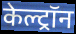
केल्ट्रॉन